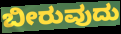
ಬೀರುವುದು